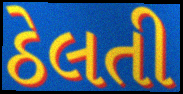
ઠેલતી